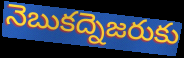
నెబుకద్నెజరుకు